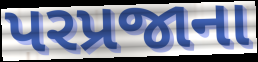
પરપ્રજાના